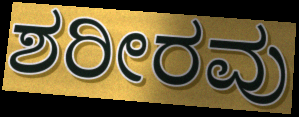
ಶರೀರವು